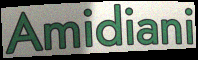
Amidiani